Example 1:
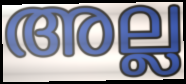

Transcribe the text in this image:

അല്ല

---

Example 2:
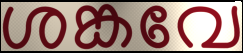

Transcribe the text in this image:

ശങ്കവേ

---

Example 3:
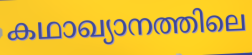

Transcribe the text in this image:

കഥാഖ്യാനത്തിലെ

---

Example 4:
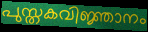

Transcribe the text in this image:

പുസ്തകവിജ്ഞാനം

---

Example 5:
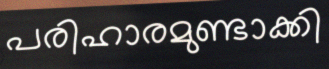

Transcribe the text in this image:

പരിഹാരമുണ്ടാക്കി